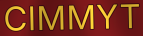
CIMMYT